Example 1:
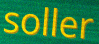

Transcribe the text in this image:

soller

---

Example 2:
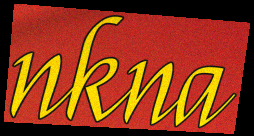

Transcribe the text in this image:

nkna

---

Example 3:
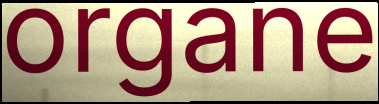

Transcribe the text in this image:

organe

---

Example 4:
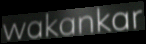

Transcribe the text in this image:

wakankar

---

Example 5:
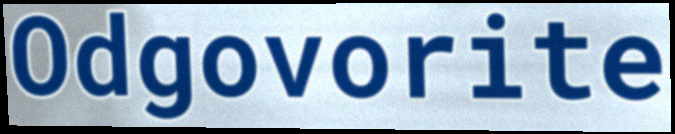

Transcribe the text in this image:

Odgovorite